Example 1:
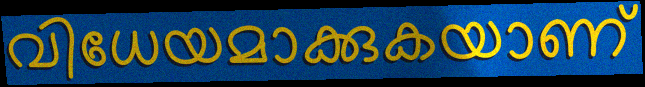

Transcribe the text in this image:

വിധേയമാക്കുകയാണ്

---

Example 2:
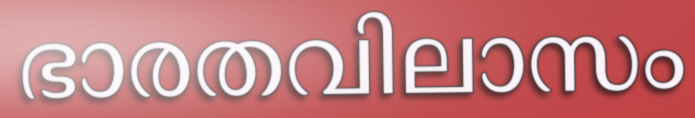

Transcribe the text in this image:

ഭാരതവിലാസം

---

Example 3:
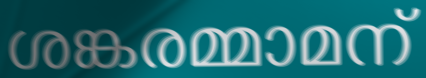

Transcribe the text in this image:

ശങ്കരമ്മാമന്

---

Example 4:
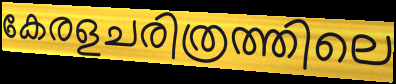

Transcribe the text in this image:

കേരളചരിത്രത്തിലെ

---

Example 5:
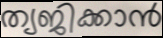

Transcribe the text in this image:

ത്യജിക്കാൻ